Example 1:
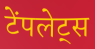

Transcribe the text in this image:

टेंपलेट्स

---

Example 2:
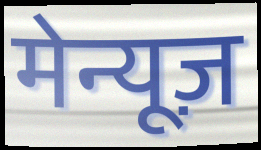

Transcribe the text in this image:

मेन्यूज़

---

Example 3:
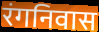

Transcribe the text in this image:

रंगनिवास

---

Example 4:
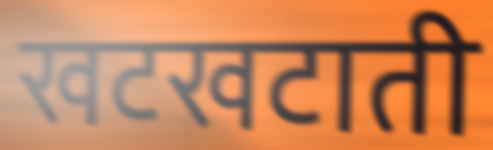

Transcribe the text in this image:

खटखटाती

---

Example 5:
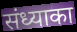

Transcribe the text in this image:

संध्याका